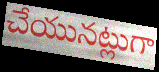
చేయునట్లుగా